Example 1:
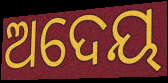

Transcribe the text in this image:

ଅଦେୟ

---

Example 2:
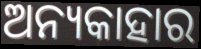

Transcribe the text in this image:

ଅନ୍ୟକାହାର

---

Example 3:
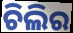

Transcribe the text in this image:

ଚିଲିର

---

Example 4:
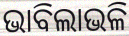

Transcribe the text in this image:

ଭାବିଲାଭଳି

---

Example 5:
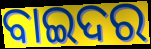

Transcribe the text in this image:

ବାଇଦର